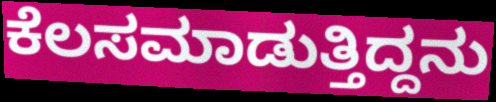
ಕೆಲಸಮಾಡುತ್ತಿದ್ದನು